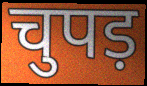
चुपड़